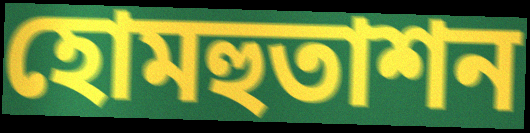
হোমহুতাশন